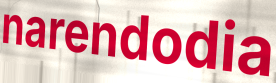
narendodia